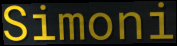
Simoni